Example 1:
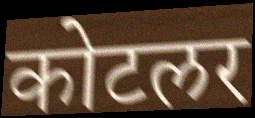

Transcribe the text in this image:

कोटलर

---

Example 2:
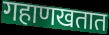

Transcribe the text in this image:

गहाणखतात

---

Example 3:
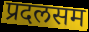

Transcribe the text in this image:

प्रदलसम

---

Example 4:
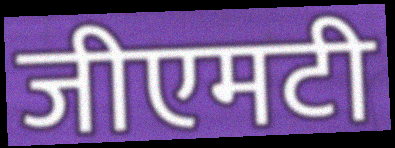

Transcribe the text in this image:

जीएमटी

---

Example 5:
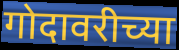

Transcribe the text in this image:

गोदावरीच्या